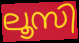
ലൂസി